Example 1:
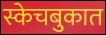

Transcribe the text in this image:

स्केचबुकात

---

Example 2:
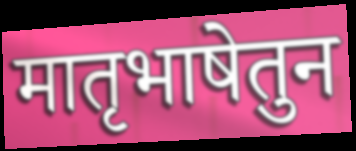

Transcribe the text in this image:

मातृभाषेतुन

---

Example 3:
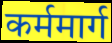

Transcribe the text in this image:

कर्ममार्ग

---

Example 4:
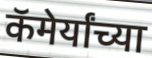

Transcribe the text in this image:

कॅमेर्यांच्या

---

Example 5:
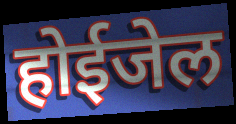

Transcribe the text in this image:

होईजेल